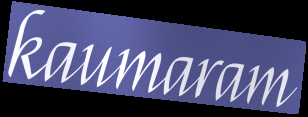
kaumaram